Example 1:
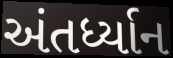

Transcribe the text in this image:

અંતર્ધ્યાન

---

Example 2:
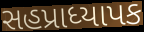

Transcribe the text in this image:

સહપ્રાધ્યાપક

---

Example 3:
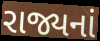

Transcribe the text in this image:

રાજ્યનાં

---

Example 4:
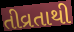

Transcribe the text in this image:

તીવ્રતાથી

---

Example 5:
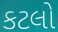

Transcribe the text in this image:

કટલો